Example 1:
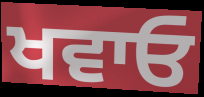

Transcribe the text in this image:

ਖਵਾਓ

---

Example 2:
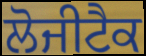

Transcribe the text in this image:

ਲੋਜੀਟੈਕ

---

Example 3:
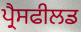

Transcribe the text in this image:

ਪ੍ਰੈਸਫੀਲਡ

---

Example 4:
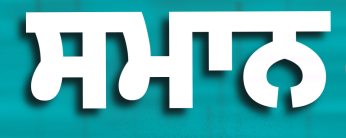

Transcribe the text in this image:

ਸਮਾਨ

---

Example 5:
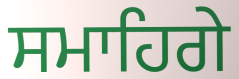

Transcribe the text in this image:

ਸਮਾਹਿਗੇ